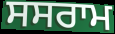
ਸਸਰਾਮ